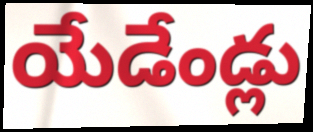
యేడేండ్లు